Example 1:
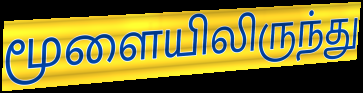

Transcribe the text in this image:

மூளையிலிருந்து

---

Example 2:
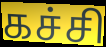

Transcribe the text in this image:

கச்சி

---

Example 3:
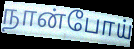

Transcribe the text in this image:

நான்போய்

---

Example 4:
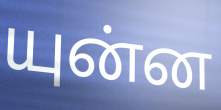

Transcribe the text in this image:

யுன்ன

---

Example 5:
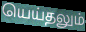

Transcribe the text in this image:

யெய்தலும்